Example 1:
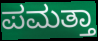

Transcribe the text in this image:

ಪಮತ್ತಾ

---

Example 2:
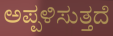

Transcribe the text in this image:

ಅಪ್ಪಳಿಸುತ್ತದೆ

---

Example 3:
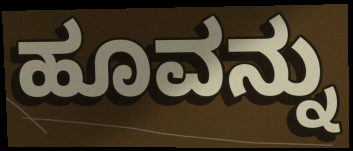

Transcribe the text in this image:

ಹೂವನ್ನು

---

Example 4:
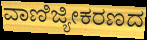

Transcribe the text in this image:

ವಾಣಿಜ್ಯೀಕರಣದ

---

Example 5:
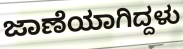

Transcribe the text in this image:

ಜಾಣೆಯಾಗಿದ್ದಳು